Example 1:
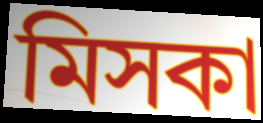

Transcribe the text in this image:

মিসকা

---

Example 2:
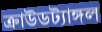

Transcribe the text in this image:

ক্রাউডট্যাঙ্গল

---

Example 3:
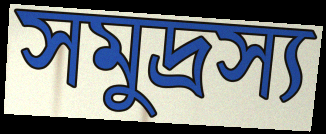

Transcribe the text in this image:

সমুদ্রস্য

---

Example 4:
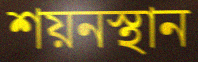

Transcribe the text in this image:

শয়নস্থান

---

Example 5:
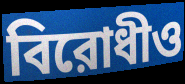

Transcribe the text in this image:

বিরোধীও